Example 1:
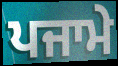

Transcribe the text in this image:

ਪਜਾਮੇ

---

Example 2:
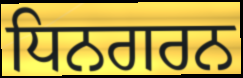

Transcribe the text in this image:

ਧਿਨਗਰਨ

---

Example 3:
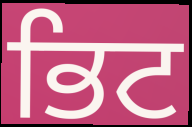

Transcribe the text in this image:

ਭਿਟ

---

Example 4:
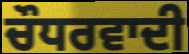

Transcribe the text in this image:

ਚੌਧਰਵਾਦੀ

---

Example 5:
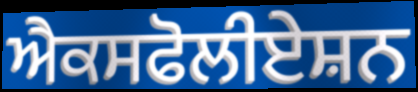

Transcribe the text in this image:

ਐਕਸਫੋਲੀਏਸ਼ਨ